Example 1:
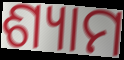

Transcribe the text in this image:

ଶ୍ୟାମ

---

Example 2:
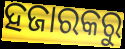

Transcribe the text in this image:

ହଜାରକରୁ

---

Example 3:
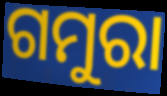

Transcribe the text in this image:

ଗମୁରା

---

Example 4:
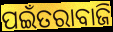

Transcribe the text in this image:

ପଇଁତରାବାଜି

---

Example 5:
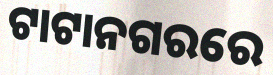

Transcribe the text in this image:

ଟାଟାନଗରରେ